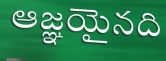
ఆజ్ఞయైనది